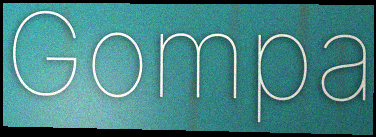
Gompa